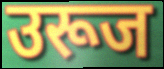
उरूज